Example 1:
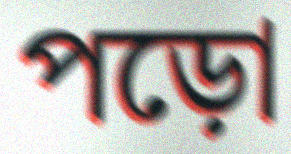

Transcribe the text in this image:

পড়ো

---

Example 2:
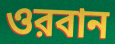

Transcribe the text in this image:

ওরবান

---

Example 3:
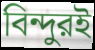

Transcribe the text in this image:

বিন্দুরই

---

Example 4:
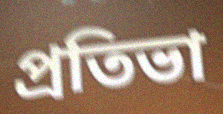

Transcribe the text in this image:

প্রতিভা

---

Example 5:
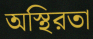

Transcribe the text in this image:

অস্থিরতা